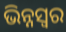
ଭିନ୍ନସ୍ବର